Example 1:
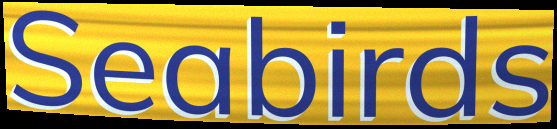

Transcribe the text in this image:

Seabirds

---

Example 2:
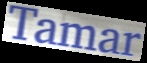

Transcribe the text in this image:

Tamar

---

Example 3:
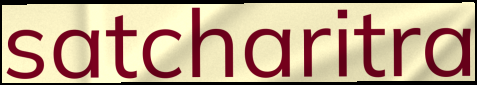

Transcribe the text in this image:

satcharitra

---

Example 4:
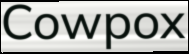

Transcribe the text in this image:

Cowpox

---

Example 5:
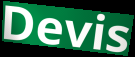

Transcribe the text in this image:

Devis